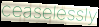
ceaselessly